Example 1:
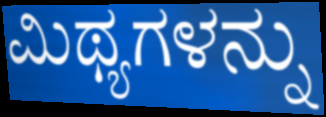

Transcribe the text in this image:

ಮಿಥ್ಯಗಳನ್ನು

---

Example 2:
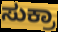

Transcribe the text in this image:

ಸುಕ್ರಾ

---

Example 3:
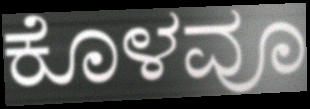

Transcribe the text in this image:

ಕೊಳವೂ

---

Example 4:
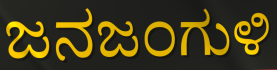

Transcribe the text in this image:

ಜನಜಂಗುಳಿ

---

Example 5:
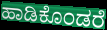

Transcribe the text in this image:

ಹಾಡಿಕೊಂಡರೆ